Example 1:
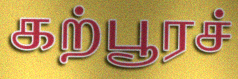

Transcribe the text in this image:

கற்பூரச்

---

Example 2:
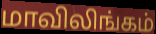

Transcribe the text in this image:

மாவிலிங்கம்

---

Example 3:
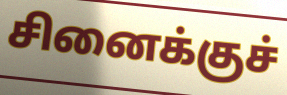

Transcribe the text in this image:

சினைக்குச்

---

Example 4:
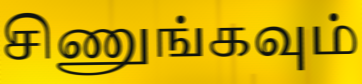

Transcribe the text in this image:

சிணுங்கவும்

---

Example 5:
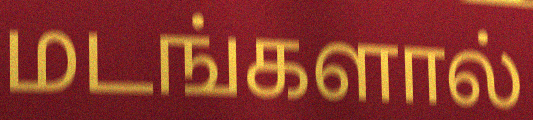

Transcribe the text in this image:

மடங்களால்